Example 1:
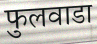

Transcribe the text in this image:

फुलवाडा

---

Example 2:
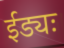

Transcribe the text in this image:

ईड्यः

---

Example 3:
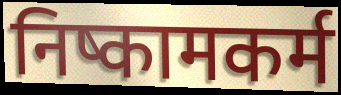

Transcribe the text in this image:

निष्कामकर्म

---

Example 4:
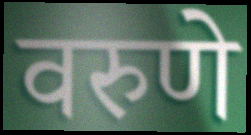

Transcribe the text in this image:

वरुणे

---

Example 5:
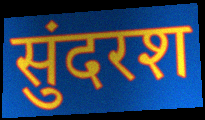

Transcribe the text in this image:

सुंदरश